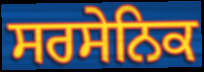
ਸਰਸੇਨਿਕ